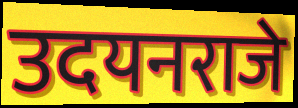
उदयनराजे